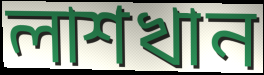
লাশখান